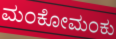
ಮಂಕೋಮಂಕು